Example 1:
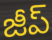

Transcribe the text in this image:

జీప్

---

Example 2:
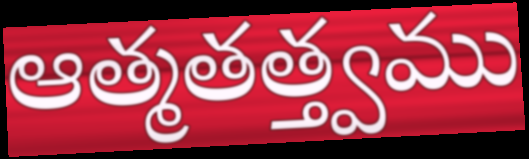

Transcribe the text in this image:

ఆత్మతత్త్వము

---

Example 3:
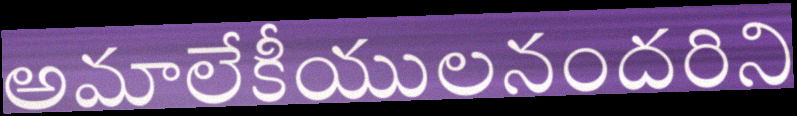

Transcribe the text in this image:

అమాలేకీయులనందరిని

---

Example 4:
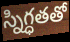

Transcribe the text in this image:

స్నిగ్ధతతో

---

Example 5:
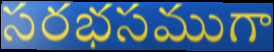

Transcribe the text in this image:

సరభసముగా